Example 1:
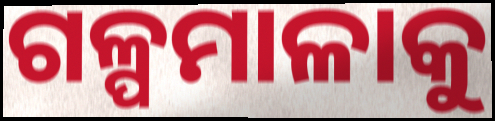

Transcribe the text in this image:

ଗଳ୍ପମାଳାକୁ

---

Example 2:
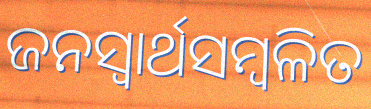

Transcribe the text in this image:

ଜନସ୍ବାର୍ଥସମ୍ବଳିତ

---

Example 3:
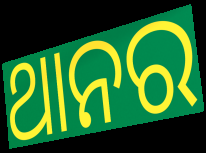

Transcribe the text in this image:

ଥାନର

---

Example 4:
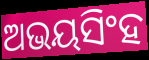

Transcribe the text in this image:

ଅଭୟସିଂହ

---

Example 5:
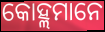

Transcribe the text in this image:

କୋହ୍ଲମାନେ